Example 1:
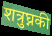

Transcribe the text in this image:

शत्रुघ्नकी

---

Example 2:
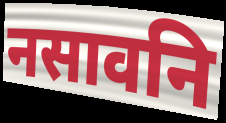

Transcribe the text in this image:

नसावनि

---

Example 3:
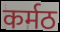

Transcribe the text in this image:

कर्मठ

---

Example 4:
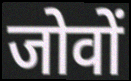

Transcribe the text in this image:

जोवों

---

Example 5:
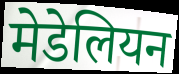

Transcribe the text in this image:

मेडेलियन